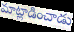
మాట్లాడించాడు